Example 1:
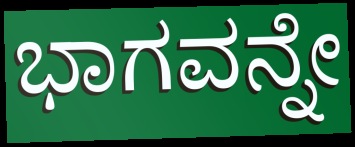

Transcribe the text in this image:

ಭಾಗವನ್ನೇ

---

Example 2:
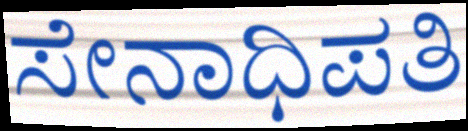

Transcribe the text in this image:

ಸೇನಾಧಿಪತಿ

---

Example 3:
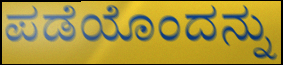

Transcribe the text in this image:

ಪಡೆಯೊಂದನ್ನು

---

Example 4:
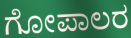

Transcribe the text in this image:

ಗೋಪಾಲರ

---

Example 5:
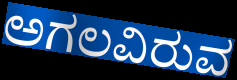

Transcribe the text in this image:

ಅಗಲವಿರುವ